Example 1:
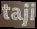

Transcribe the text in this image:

taji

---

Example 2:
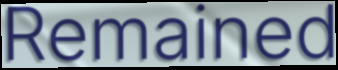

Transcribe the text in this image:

Remained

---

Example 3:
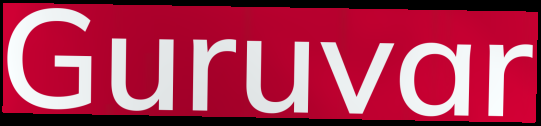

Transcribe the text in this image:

Guruvar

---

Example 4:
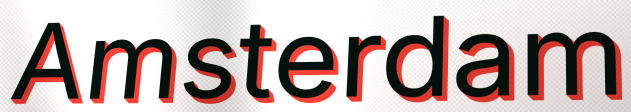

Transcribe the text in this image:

Amsterdam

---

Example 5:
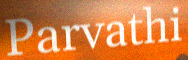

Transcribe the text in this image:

Parvathi